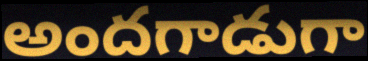
అందగాడుగా